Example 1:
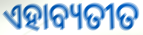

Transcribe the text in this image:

ଏହାବ୍ୟତୀତ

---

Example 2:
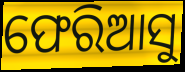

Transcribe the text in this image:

ଫେରିଆସୁ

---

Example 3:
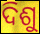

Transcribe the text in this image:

ଦିଶୁ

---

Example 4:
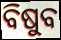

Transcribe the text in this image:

ବିଷୁବ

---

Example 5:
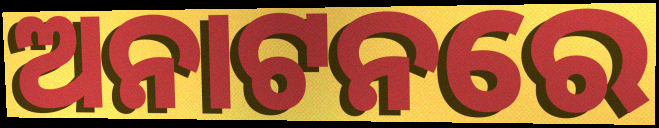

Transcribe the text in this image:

ଅନାଟନରେ